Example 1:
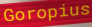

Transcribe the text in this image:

Goropius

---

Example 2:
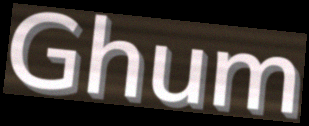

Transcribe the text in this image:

Ghum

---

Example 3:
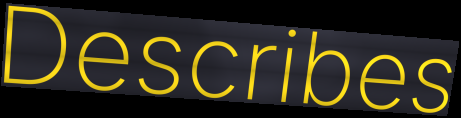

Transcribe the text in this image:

Describes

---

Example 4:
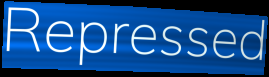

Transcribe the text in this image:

Repressed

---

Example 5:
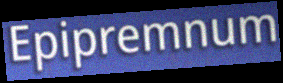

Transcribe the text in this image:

Epipremnum